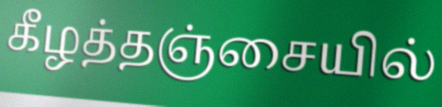
கீழத்தஞ்சையில்